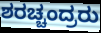
ಶರಚ್ಚಂದ್ರರು